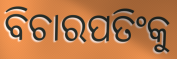
ବିଚାରପତିଂକୁ